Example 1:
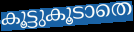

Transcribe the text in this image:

കൂട്ടുകൂടാതെ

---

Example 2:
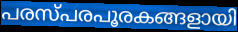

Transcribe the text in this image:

പരസ്പരപൂരകങ്ങളായി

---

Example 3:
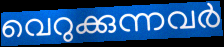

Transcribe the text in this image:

വെറുക്കുന്നവർ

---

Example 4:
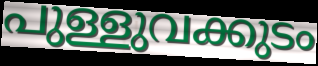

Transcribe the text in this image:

പുള്ളുവക്കുടം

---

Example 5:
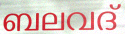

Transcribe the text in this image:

ബലവദ്